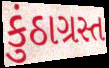
કુંઠાગ્રસ્ત